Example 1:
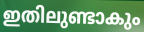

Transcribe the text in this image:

ഇതിലുണ്ടാകും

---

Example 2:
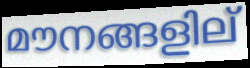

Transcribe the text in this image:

മൗനങ്ങളില്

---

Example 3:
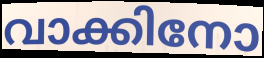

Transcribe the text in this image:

വാക്കിനോ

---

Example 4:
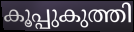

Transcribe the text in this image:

കൂപ്പുകുത്തി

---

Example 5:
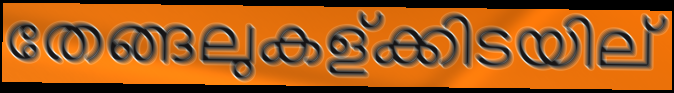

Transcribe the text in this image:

തേങ്ങലുകള്ക്കിടയില്